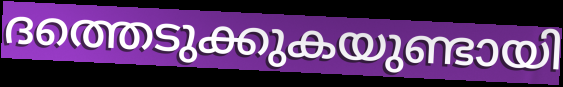
ദത്തെടുക്കുകയുണ്ടായി